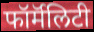
फॉर्मॅलिटी